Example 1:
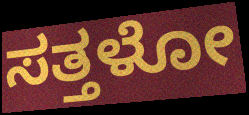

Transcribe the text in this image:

ಸತ್ತಳೋ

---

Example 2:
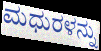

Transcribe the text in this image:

ಮಧುರಳನ್ನು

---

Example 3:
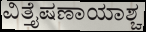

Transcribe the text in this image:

ವಿತ್ತೈಷಣಾಯಾಶ್ಚ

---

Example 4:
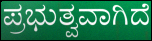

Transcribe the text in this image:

ಪ್ರಭುತ್ವವಾಗಿದೆ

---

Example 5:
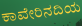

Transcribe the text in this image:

ಕಾವೇರಿನದಿಯ